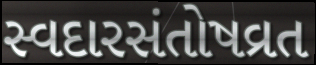
સ્વદારસંતોષવ્રત